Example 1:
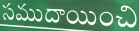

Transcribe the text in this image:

సముదాయించి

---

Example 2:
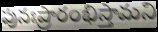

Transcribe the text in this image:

పునఃప్రారంభిస్తామని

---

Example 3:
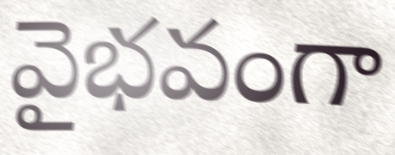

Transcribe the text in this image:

వైభవంగా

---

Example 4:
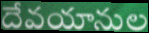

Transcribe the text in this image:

దేవయానుల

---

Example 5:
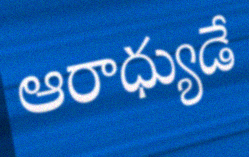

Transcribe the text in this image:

ఆరాధ్యుడే